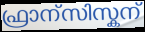
ഫ്രാന്സിസ്കന്